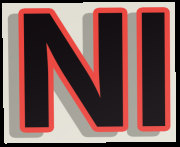
Nl